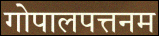
गोपालपत्तनम